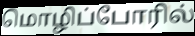
மொழிப்போரில்